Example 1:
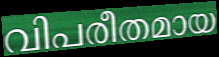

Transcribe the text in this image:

വിപരീതമായ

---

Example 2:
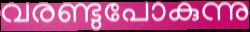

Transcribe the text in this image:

വരണ്ടുപോകുന്നു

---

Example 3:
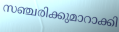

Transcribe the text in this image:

സഞ്ചരിക്കുമാറാക്കി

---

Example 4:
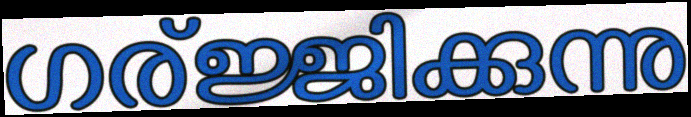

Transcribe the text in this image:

ഗര്ജ്ജിക്കുന്നു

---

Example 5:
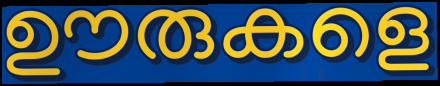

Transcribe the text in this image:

ഊരുകളെ